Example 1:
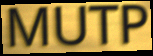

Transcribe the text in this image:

MUTP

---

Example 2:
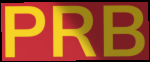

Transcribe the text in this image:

PRB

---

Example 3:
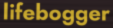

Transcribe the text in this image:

lifebogger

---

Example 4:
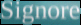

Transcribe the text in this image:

Signore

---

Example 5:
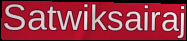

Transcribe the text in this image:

Satwiksairaj